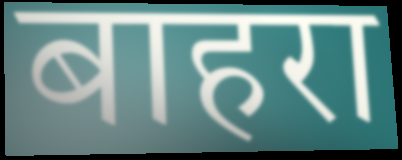
बाहरा